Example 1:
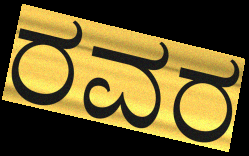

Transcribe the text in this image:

ರವರ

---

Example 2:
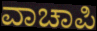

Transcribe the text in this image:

ವಾಚಾಪಿ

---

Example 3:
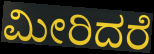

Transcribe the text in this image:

ಮೀರಿದರೆ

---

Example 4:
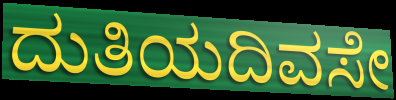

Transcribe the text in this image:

ದುತಿಯದಿವಸೇ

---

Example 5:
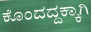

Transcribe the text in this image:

ಕೊಂದದ್ದಕ್ಕಾಗಿ